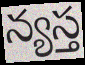
న్యస్త